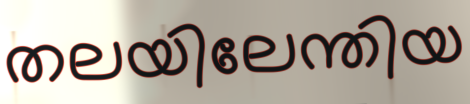
തലയിലേന്തിയ